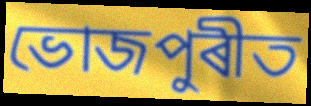
ভোজপুৰীত